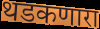
थडकणारा